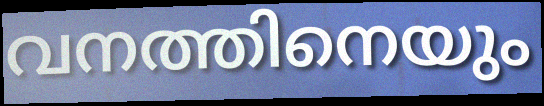
വനത്തിനെയും